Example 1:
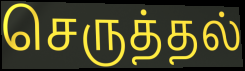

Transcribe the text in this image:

செருத்தல்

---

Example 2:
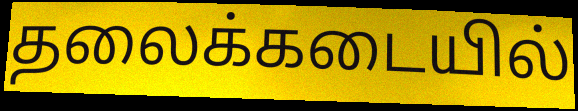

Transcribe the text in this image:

தலைக்கடையில்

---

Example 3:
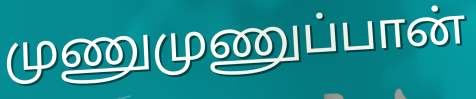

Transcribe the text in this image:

முணுமுணுப்பான்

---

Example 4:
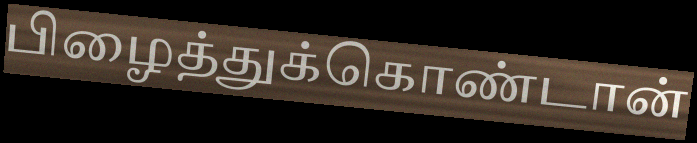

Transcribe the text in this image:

பிழைத்துக்கொண்டான்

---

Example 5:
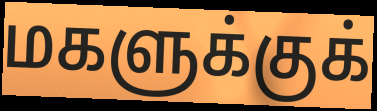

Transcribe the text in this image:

மகளுக்குக்